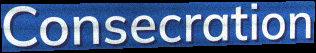
Consecration